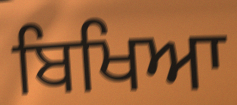
ਬਿਖਿਆ